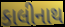
કાલીનાથ